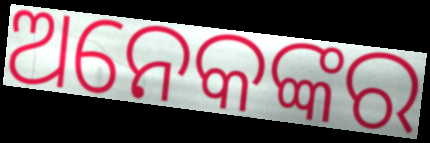
ଅନେକଙ୍କର